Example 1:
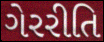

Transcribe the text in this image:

ગેરરીતિ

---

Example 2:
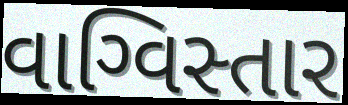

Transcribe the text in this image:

વાગ્વિસ્તાર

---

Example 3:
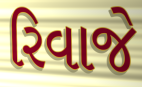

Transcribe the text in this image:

રિવાજે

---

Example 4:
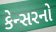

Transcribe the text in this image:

કેન્સરનો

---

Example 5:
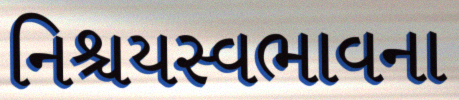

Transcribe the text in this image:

નિશ્ચયસ્વભાવના